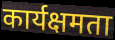
कार्यक्षमता